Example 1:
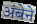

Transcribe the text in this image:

अंबेने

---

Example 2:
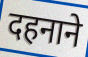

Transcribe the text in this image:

दहनाने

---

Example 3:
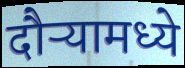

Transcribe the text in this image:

दौऱ्यामध्ये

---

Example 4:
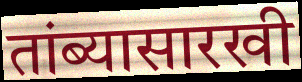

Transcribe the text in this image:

तांब्यासारखी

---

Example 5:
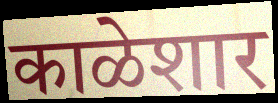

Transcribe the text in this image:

काळेशार